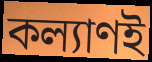
কল্যাণই